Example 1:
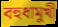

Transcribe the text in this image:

বহুধামুখী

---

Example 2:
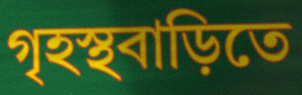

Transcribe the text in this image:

গৃহস্থবাড়িতে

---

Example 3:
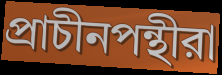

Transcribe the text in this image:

প্রাচীনপন্থীরা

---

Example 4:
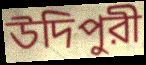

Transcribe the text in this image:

উদিপুরী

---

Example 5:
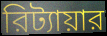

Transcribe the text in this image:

রিট্যায়ার